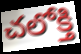
చలోక్తి